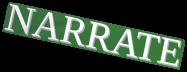
NARRATE